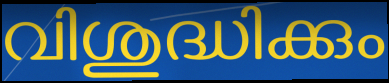
വിശുദ്ധിക്കും